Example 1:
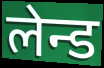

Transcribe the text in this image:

लेन्ड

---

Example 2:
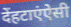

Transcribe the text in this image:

देंहटाएंऐसी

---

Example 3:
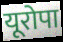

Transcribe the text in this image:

यूरोपा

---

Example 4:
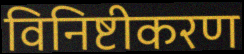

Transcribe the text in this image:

विनिष्टीकरण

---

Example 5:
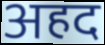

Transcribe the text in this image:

अहद